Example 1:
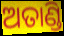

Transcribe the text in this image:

ଅତାଣ୍ଡି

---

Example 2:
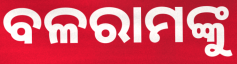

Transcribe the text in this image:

ବଳରାମଙ୍କୁ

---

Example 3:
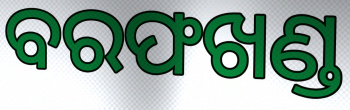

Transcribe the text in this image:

ବରଫଖଣ୍ଡ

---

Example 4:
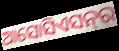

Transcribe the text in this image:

ଆସୋସିଏସନ୍‍ର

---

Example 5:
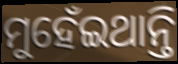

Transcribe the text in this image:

ମୁହେଁଇଥାନ୍ତି